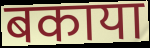
बकाया